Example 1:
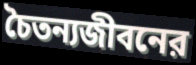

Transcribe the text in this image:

চৈতন্যজীবনের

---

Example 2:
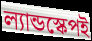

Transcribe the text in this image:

ল্যান্ডস্কেপই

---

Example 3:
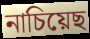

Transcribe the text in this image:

নাচিয়েছ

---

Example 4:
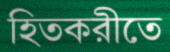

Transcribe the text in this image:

হিতকরীতে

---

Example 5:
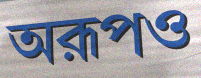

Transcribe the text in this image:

অরূপও